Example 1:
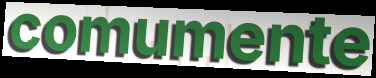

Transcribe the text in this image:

comumente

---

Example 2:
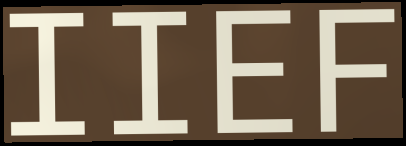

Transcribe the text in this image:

IIEF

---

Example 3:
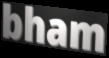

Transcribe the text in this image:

bham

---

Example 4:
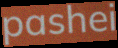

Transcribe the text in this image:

pashei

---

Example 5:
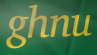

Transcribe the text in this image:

ghnu